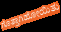
ಗೊತ್ತಾಗಿಹೋಯಿತು